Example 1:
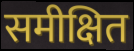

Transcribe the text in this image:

समीक्षित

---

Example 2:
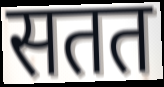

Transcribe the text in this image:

सतत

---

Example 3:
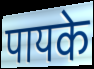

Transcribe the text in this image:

पायके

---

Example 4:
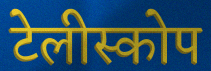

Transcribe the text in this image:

टेलीस्कोप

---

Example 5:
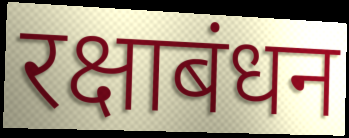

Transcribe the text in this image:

रक्षाबंधन